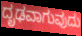
ದೃಢವಾಗುವುದು